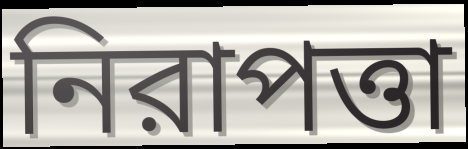
নিরাপত্তা